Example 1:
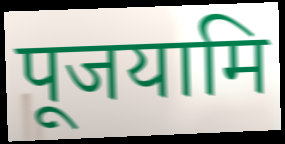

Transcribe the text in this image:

पूजयामि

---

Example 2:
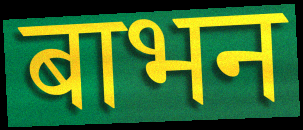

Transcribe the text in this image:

बाभन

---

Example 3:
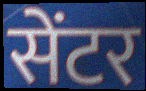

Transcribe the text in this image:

सेंटर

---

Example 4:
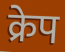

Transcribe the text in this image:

क्रेप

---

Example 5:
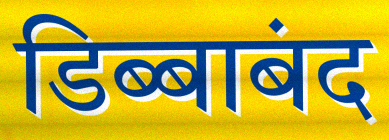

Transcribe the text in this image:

डिब्बाबंद